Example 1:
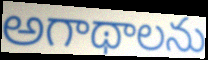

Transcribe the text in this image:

అగాథాలను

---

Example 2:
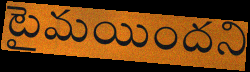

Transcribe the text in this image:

టైమయిందని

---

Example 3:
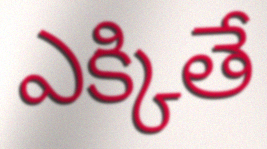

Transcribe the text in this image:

ఎక్కితే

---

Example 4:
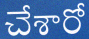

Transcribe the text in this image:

చేశారో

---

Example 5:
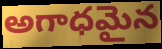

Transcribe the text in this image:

అగాధమైన